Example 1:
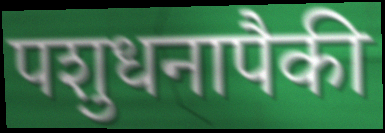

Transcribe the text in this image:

पशुधनापैकी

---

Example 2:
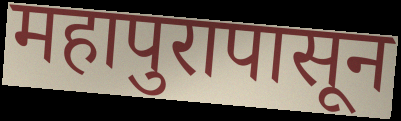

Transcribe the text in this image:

महापुरापासून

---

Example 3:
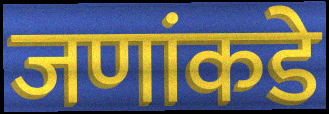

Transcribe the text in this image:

जणांकडे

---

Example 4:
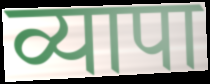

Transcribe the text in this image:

व्यापा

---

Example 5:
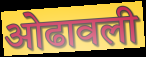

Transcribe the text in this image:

ओढावली